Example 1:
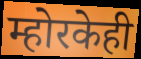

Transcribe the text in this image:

म्होरकेही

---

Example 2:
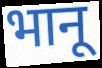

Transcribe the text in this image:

भानू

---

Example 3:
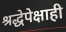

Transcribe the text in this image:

श्रद्धेपेक्षाही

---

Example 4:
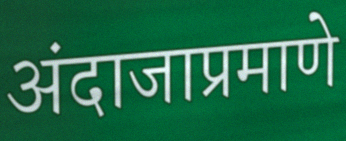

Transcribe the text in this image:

अंदाजाप्रमाणे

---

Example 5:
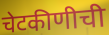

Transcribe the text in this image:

चेटकीणीची